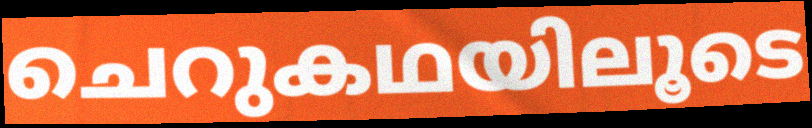
ചെറുകഥയിലൂടെ